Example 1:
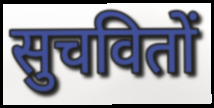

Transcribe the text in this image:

सुचवितों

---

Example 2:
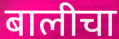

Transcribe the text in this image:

बालीचा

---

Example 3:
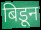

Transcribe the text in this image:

बिडून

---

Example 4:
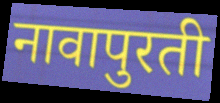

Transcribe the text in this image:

नावापुरती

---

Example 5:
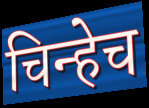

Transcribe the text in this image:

चिन्हेच